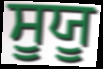
ਸੂਯੂ